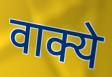
वाक्ये